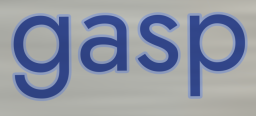
gasp